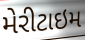
મેરીટાઇમ